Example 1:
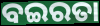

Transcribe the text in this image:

ବଇରତା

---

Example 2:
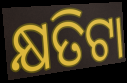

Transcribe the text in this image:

କ୍ଷତିଟା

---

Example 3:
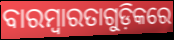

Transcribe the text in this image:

ବାରମ୍ବାରତାଗୁଡ଼ିକରେ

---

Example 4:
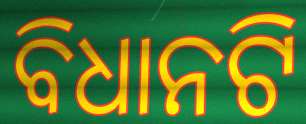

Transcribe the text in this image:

ବିଧାନଟି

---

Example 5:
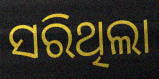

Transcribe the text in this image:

ସରିଥିଲା